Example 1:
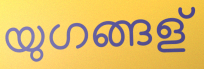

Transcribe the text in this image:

യുഗങ്ങള്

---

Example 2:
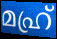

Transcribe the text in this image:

മഹ്ര്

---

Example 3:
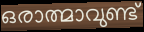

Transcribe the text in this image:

ഒരാത്മാവുണ്ട്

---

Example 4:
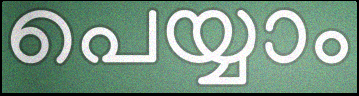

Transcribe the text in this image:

പെയ്യാം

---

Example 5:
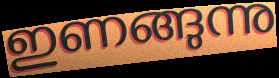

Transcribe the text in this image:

ഇണങ്ങുന്നു